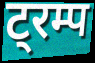
ट्रम्प